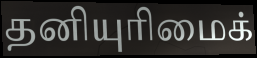
தனியுரிமைக்